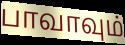
பாவாவும்